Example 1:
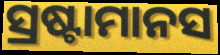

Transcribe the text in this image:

ସ୍ରଷ୍ଟାମାନସ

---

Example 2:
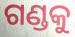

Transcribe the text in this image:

ଗଣ୍ଡକୁ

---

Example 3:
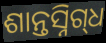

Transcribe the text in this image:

ଶାନ୍ତସ୍ନିଗ୍‌ଧ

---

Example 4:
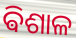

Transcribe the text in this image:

ଵିଶାଳ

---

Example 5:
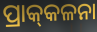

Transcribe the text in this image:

ପ୍ରାକ୍‌କଳନା